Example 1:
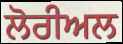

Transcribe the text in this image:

ਲੋਰੀਅਲ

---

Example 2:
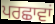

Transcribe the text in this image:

ਪਰਛਾਵਾਂ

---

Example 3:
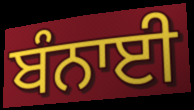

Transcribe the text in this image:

ਬੰਨਾਈ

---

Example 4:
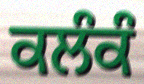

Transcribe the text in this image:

ਕਲੰਕੰ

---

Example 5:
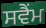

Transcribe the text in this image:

ਸਵੈਂਮ